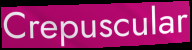
Crepuscular